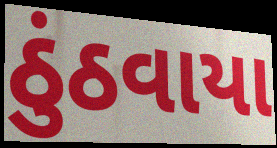
ઠુંઠવાયા